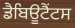
ਡੈਬਿਊਟੈਂਟਸ